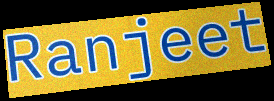
Ranjeet